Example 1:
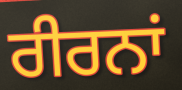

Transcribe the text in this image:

ਰੀਰਨਾਂ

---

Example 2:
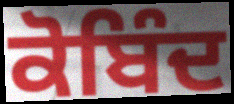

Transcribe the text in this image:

ਕੋਬਿੰਦ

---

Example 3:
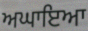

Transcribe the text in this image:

ਅਘਾਇਆ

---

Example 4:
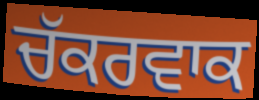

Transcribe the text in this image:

ਚੱਕਰਵਾਕ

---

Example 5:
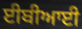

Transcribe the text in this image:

ਈਬੀਆਈ